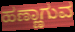
ಹಣ್ಣಾಗುವ